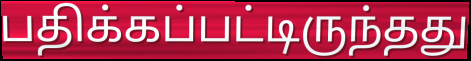
பதிக்கப்பட்டிருந்தது